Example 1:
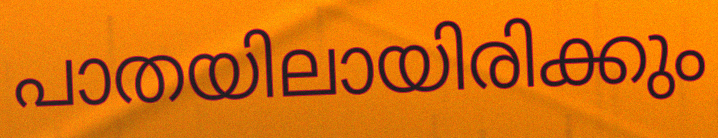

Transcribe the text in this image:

പാതയിലായിരിക്കും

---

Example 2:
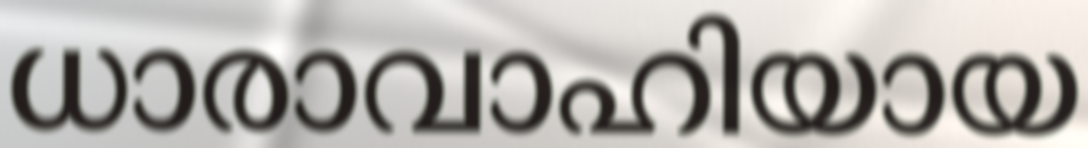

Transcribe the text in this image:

ധാരാവാഹിയായ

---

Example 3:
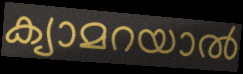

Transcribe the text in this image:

ക്യാമറയാൽ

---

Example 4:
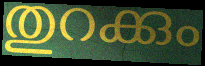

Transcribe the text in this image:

തുറക്കും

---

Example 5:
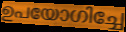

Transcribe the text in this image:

ഉപയോഗിച്ചേ